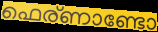
ഫെര്ണാണ്ടോ